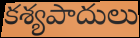
కశ్యపాదులు